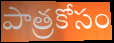
పాత్రకోసం